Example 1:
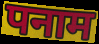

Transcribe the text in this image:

पनाम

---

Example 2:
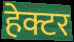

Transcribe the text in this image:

हेक्टर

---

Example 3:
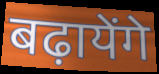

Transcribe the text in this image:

बढ़ायेंगे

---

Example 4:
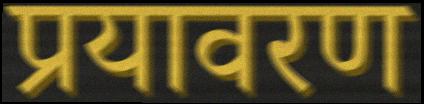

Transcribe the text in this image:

प्रयावरण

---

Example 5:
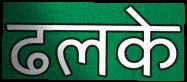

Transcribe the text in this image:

ढलके